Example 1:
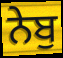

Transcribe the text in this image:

ਨੇਬੁ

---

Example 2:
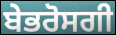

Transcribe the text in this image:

ਬੇਭਰੋਸਗੀ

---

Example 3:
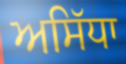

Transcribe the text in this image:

ਅਸਿੱਧਾ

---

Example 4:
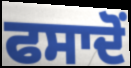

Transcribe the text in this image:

ਫਸਾਦੋਂ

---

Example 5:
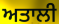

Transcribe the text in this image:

ਅਤਾਲੀ